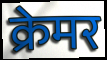
क्रेमर